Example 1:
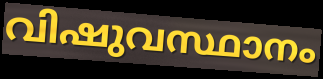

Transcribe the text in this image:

വിഷുവസ്ഥാനം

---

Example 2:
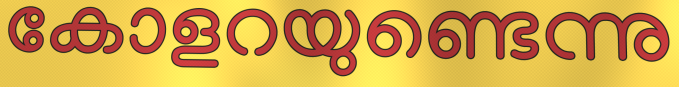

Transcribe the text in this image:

കോളറയുണ്ടെന്നു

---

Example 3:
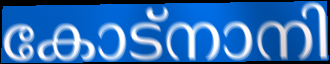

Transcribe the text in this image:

കോട്നാനി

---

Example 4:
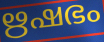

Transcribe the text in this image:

ഋഷഭം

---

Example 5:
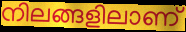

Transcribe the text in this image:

നിലങ്ങളിലാണ്